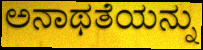
ಅನಾಥತೆಯನ್ನು